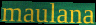
maulana